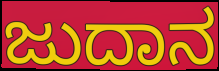
ಜುದಾನ